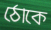
ঠোকে